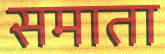
समाता